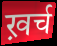
ख़र्च